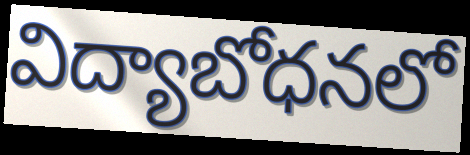
విద్యాబోధనలో